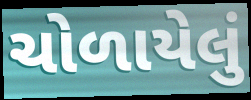
ચોળાયેલું